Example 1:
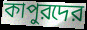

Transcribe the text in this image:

কাপুরদের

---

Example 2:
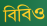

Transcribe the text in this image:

বিবিও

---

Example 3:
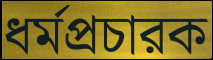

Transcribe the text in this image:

ধর্মপ্রচারক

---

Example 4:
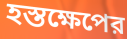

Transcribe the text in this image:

হস্তক্ষেপের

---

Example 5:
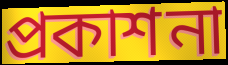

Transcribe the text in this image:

প্রকাশনা